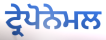
ਟ੍ਰੇਪੋਨੇਮਲ